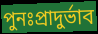
পুনঃপ্রাদুর্ভাব